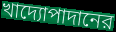
খাদ্যোপাদানের